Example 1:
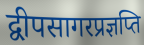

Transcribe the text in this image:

द्वीपसागरप्रज्ञप्ति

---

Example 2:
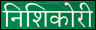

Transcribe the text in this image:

निशिकोरी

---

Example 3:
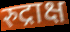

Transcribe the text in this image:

रुद्राक्ष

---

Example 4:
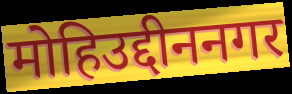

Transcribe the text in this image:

मोहिउद्दीननगर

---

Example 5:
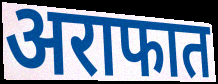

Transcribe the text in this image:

अराफात